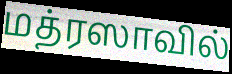
மத்ரஸாவில்